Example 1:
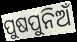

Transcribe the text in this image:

ପୁଷପୁନିଅଁ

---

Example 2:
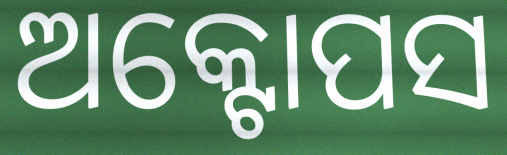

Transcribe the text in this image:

ଅକ୍ଟୋପସ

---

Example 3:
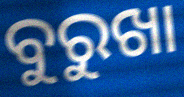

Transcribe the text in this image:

ବୁରୁଖା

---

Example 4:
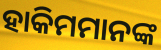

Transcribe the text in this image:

ହାକିମମାନଙ୍କ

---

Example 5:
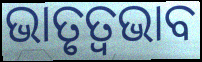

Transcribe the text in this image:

ଭାତୃତ୍ବଭାବ